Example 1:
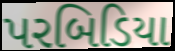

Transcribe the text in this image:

પરબિડિયા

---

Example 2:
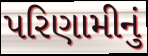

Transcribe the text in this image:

પરિણામીનું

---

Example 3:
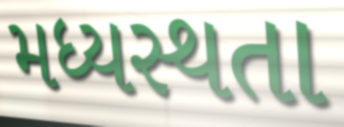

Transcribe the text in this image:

મધ્યસ્થતા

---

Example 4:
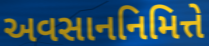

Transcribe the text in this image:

અવસાનનિમિત્તે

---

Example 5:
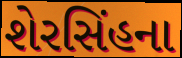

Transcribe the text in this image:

શેરસિંહના